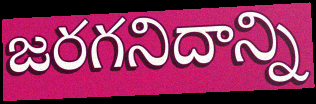
జరగనిదాన్ని